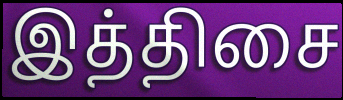
இத்திசை